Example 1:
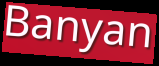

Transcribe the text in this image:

Banyan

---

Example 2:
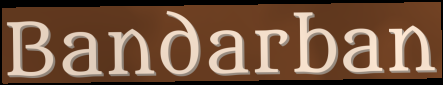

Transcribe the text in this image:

Bandarban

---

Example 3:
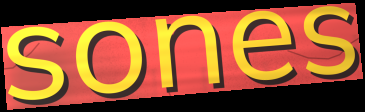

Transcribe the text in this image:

sones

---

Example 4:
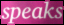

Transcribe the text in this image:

speaks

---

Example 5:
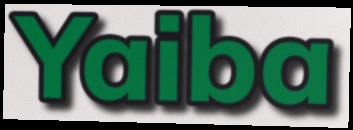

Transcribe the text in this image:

Yaiba